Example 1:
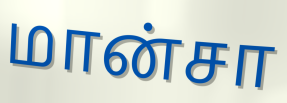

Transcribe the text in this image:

மான்சா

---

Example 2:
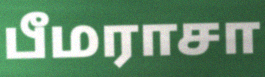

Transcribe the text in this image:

பீமராசா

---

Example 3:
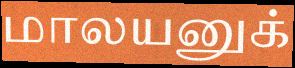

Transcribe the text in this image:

மாலயனுக்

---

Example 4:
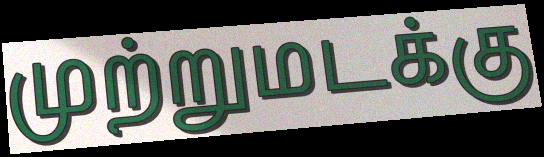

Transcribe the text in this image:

முற்றுமடக்கு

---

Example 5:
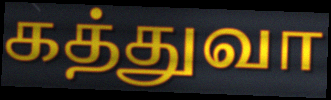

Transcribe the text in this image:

கத்துவா